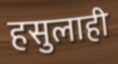
हसुलाही